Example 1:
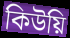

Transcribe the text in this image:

কিউয়ি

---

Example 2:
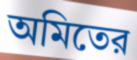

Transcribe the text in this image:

অমিতের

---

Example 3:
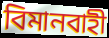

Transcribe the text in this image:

বিমানবাহী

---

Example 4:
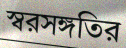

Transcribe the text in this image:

স্বরসঙ্গতির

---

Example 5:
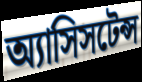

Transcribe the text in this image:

অ্যাসিসটেন্স